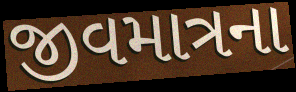
જીવમાત્રના